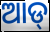
ଆଡ୍